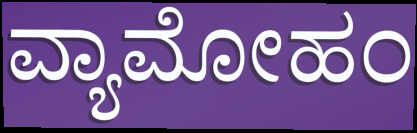
ವ್ಯಾಮೋಹಂ